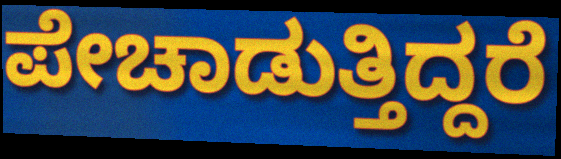
ಪೇಚಾಡುತ್ತಿದ್ದರೆ